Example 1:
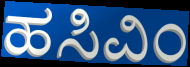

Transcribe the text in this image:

ಹಸಿವಿಂ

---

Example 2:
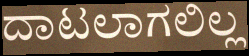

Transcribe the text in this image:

ದಾಟಲಾಗಲಿಲ್ಲ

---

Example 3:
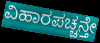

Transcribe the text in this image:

ವಿಹಾರಪಚ್ಚನ್ತೇ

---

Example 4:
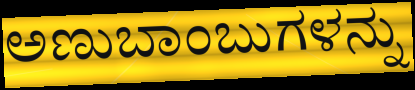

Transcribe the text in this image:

ಅಣುಬಾಂಬುಗಳನ್ನು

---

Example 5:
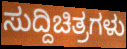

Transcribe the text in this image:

ಸುದ್ದಿಚಿತ್ರಗಳು